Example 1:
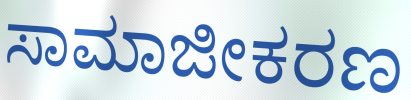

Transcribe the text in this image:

ಸಾಮಾಜೀಕರಣ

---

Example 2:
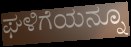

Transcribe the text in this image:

ಘಳಿಗೆಯನ್ನೂ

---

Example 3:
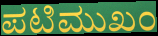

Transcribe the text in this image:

ಪಟಿಮುಖಂ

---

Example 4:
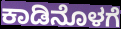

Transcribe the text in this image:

ಕಾಡಿನೊಳಗೆ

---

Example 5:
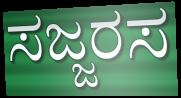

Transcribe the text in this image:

ಸಜ್ಜರಸ